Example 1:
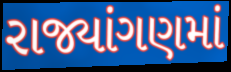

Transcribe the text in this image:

રાજ્યાંગણમાં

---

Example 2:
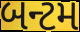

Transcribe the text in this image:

બન્ટમ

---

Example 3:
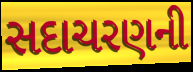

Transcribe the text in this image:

સદાચરણની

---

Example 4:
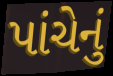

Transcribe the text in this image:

પાંચેનું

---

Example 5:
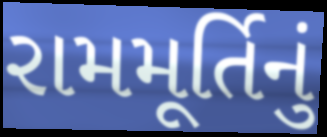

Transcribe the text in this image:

રામમૂર્તિનું